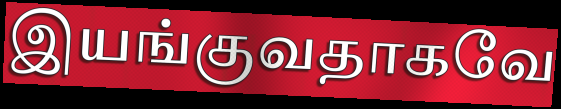
இயங்குவதாகவே